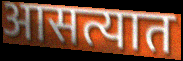
आसत्यात